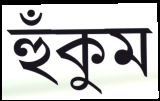
হুঁকুম